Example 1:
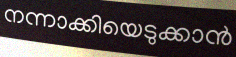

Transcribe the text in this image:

നന്നാക്കിയെടുക്കാൻ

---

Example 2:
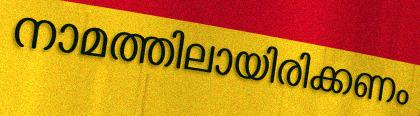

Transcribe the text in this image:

നാമത്തിലായിരിക്കണം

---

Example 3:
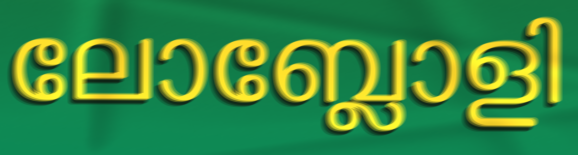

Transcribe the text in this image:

ലോബ്ലോളി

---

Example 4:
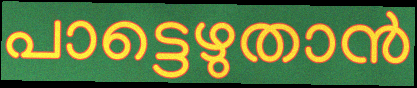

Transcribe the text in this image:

പാട്ടെഴുതാൻ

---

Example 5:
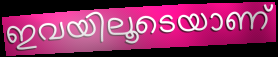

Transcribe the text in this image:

ഇവയിലൂടെയാണ്